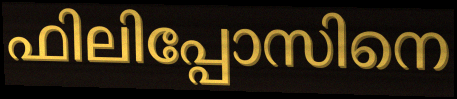
ഫിലിപ്പോസിനെ